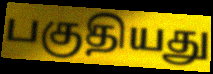
பகுதியது